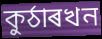
কুঠাৰখন